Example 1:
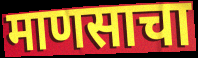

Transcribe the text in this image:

माणसाचा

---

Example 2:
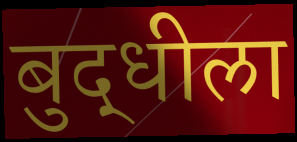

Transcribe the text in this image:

बुद्धीला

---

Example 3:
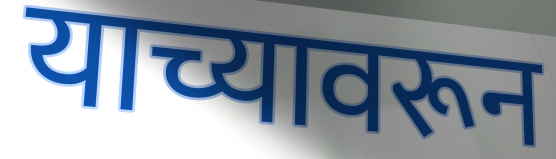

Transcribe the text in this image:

याच्यावरून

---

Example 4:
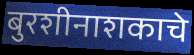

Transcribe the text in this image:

बुरशीनाशकाचे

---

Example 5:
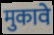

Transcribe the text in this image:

मुकावे